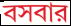
বসবার